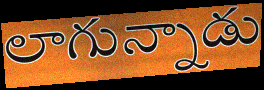
లాగున్నాడు